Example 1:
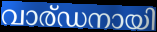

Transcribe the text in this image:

വാര്ഡനായി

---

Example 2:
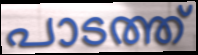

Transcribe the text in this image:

പാടത്ത്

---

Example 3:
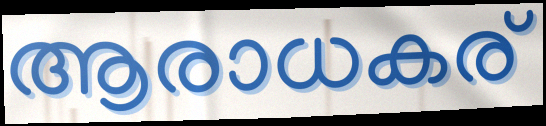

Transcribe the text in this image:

ആരാധകര്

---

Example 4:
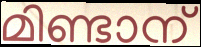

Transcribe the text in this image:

മിണ്ടാന്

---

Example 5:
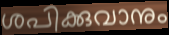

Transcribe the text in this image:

ശപിക്കുവാനും